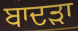
ਬਾਦੜਾ